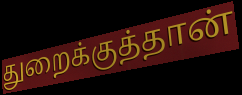
துறைக்குத்தான்